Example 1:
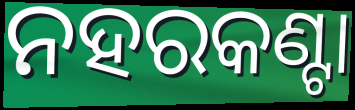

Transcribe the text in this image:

ନହରକଣ୍ଟା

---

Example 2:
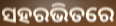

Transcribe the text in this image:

ସହରଭିତରେ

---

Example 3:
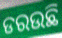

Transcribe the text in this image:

ଡରଉଛି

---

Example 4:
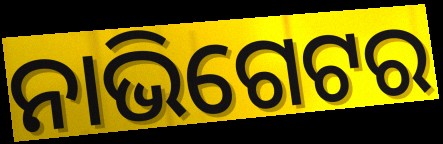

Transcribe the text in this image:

ନାଭିଗେଟର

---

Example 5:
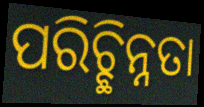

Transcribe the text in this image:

ପରିଚ୍ଛିନ୍ନତା